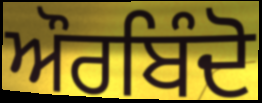
ਔਰਬਿੰਦੋ